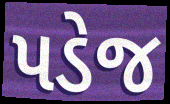
પડેજ